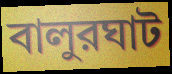
বালুরঘাট